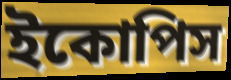
ইকোপিস